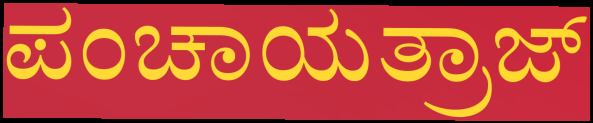
ಪಂಚಾಯತ್ರಾಜ್